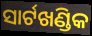
ସାର୍ଟଖଣ୍ଡିକ